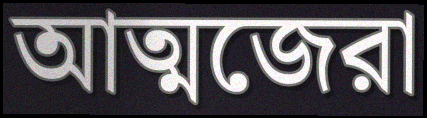
আত্মজেরা